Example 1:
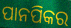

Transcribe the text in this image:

ପାନପିକର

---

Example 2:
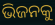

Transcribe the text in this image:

ଭିଜନକୁ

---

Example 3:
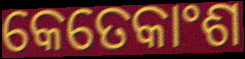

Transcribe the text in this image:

କେତେକାଂଶ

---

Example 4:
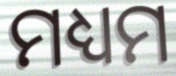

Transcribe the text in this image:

ମଧ୍ୟମ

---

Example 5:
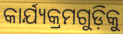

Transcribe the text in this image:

କାର୍ଯ୍ୟକ୍ରମଗୁଡ଼ିକୁ